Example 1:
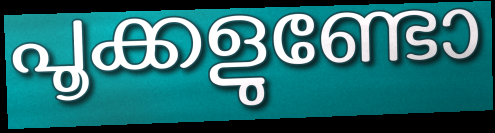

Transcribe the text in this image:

പൂക്കളുണ്ടോ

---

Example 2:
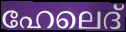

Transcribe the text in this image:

ഹേലെദ്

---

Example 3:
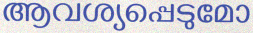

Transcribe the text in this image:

ആവശ്യപ്പെടുമോ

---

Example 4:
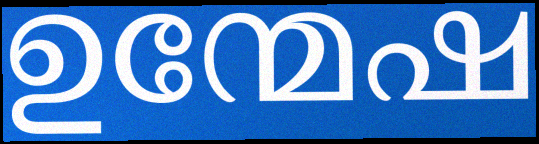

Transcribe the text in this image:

ഉന്മേഷ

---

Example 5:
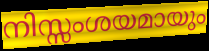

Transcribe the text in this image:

നിസ്സംശയമായും